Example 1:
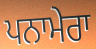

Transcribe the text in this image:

ਪਨਾਮੇਰਾ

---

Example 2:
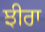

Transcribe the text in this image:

ਝੀਰਾ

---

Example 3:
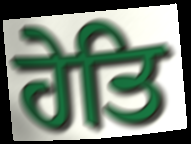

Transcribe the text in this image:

ਹੇਤਿ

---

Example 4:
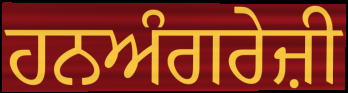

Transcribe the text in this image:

ਹਨਅੰਗਰੇਜ਼ੀ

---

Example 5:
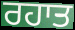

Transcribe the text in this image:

ਰਹਾਤ